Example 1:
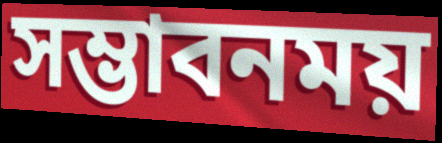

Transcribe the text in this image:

সম্ভাবনময়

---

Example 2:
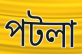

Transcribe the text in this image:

পটলা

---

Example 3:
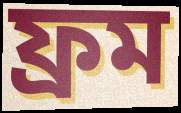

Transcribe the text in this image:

ফ্রম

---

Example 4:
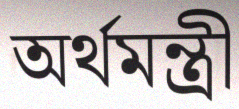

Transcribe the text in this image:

অর্থমন্ত্রী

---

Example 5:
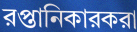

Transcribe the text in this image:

রপ্তানিকারকরা